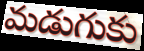
మడుగుకు